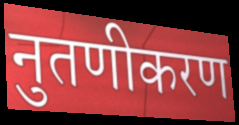
नुतणीकरण